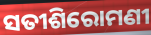
ସତୀଶିରୋମଣୀ